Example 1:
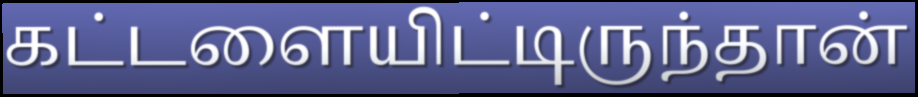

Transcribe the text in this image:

கட்டளையிட்டிருந்தான்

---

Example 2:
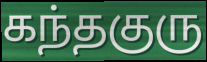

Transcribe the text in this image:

கந்தகுரு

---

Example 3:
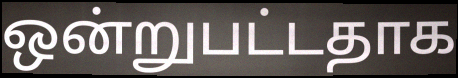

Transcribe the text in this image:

ஒன்றுபட்டதாக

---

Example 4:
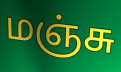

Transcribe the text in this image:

மஞ்சு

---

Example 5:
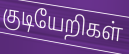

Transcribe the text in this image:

குடியேறிகள்